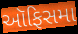
ઑફિસમા